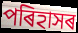
পৰিহাসৰ